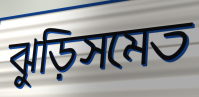
ঝুড়িসমেত